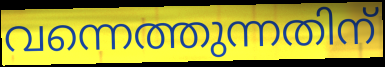
വന്നെത്തുന്നതിന്